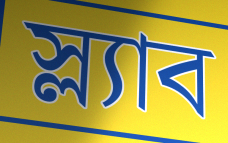
স্ল্যাব